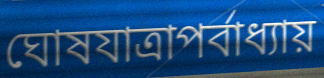
ঘোষযাত্রাপর্বাধ্যায়